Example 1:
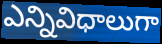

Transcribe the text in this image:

ఎన్నివిధాలుగా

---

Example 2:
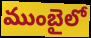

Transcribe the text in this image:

ముంబైలో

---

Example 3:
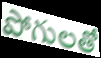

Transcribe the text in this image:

పోగులతో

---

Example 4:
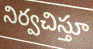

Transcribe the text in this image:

నిర్వచిస్తూ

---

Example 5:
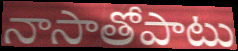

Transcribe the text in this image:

నాసాతోపాటు